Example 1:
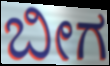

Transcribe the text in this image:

ಬೀಗ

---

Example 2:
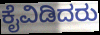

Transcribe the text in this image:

ಕೈವಿಡಿದರು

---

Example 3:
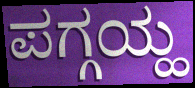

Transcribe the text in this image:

ಪಗ್ಗಯ್ಹ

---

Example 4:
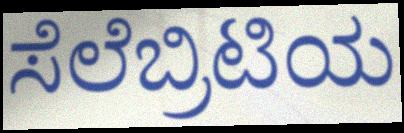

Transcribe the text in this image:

ಸೆಲೆಬ್ರಿಟಿಯ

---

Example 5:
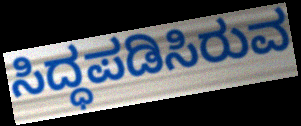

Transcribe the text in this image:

ಸಿದ್ಧಪಡಿಸಿರುವ